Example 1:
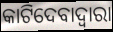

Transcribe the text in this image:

କାଟିଦେବାଦ୍ଵାରା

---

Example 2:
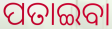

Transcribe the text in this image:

ପତାଇବା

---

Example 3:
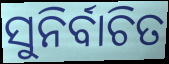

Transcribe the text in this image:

ସୁନିର୍ବାଚିତ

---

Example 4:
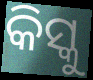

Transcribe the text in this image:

କିସ୍କୁ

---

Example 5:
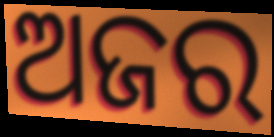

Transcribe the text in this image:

ଅଜର